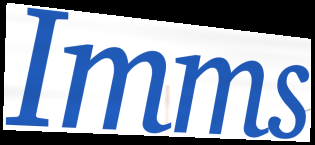
Imms